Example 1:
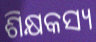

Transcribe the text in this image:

ଶିକ୍ଷକସ୍ୟ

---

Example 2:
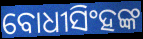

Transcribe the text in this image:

ବୋଧୀସିଂହଙ୍କ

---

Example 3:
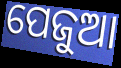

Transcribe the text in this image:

ପେଜୁଆ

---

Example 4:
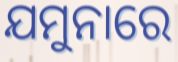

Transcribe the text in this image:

ଯମୁନାରେ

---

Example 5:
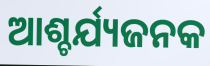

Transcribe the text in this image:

ଆଶ୍ଚର୍ଯ୍ୟଜନକ